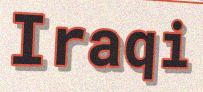
Iraqi